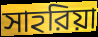
সাহরিয়া